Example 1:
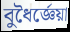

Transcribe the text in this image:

বুধৈর্জ্ঞেয়া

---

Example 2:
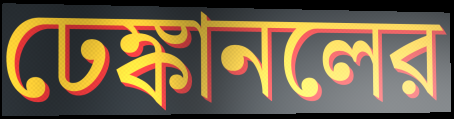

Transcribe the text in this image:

ঢেঙ্কানলের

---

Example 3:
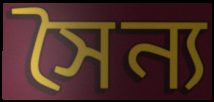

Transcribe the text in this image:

সৈন্য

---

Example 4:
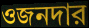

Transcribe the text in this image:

ওজনদার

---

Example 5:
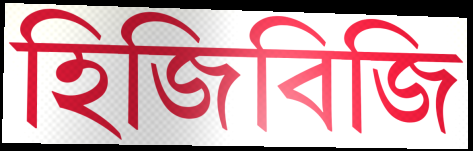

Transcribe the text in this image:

হিজিবিজি